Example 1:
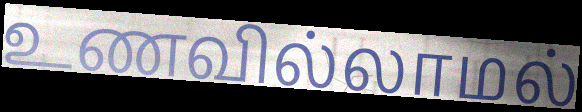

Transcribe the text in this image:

உணவில்லாமல்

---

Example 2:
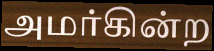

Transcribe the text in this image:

அமர்கின்ற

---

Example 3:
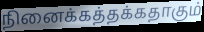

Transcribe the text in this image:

நினைக்கத்தக்கதாகும்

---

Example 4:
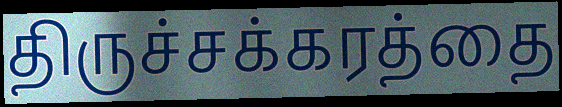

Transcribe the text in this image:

திருச்சக்கரத்தை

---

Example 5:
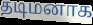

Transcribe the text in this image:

தடிமனாக